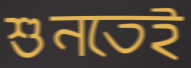
শুনতেই